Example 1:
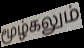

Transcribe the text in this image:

மூழ்கலும்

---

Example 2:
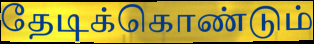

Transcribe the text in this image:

தேடிக்கொண்டும்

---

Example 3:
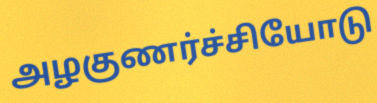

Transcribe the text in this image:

அழகுணர்ச்சியோடு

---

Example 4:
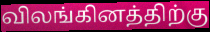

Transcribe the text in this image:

விலங்கினத்திற்கு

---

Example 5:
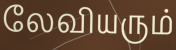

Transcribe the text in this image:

லேவியரும்